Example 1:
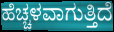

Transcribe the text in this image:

ಹೆಚ್ಚಳವಾಗುತ್ತಿದೆ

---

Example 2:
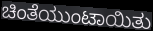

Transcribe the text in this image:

ಚಿಂತೆಯುಂಟಾಯಿತು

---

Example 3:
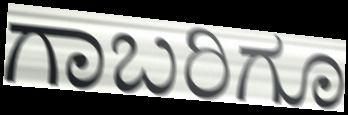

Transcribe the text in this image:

ಗಾಬರಿಗೂ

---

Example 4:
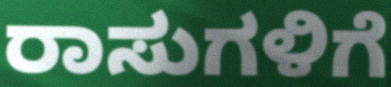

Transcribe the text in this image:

ರಾಸುಗಳಿಗೆ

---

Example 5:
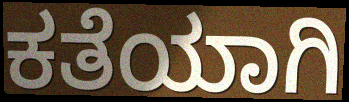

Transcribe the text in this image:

ಕತೆಯಾಗಿ